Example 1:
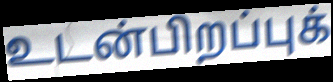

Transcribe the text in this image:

உடன்பிறப்புக்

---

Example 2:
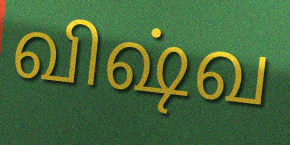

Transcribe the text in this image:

விஷ்வ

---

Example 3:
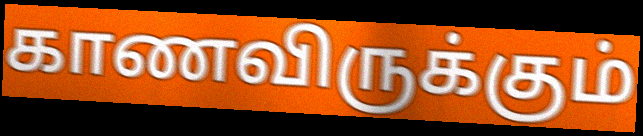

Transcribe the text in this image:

காணவிருக்கும்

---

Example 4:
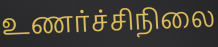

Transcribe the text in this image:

உணர்ச்சிநிலை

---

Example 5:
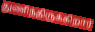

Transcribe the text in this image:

துணிந்திருக்கிறார்